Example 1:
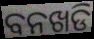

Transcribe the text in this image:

ବନଖଡି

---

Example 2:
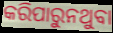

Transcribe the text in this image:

କରିପାରୁନଥୁବା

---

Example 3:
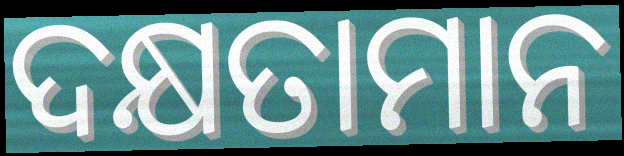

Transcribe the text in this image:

ଦକ୍ଷତାମାନ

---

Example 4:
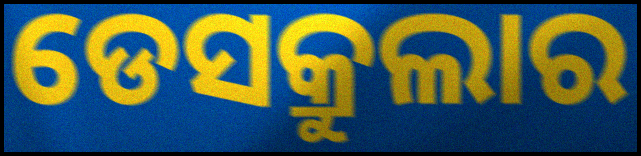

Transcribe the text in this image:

ଡେସକ୍ରୁଲାର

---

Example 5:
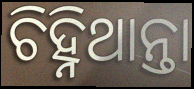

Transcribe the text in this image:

ଚିହ୍ନିଥାନ୍ତା